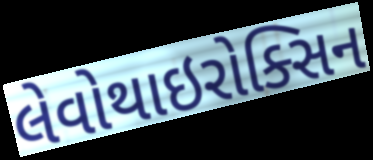
લેવોથાઇરોક્સિન